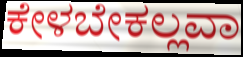
ಕೇಳಬೇಕಲ್ಲವಾ